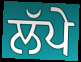
ਲੱਪੇ